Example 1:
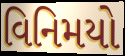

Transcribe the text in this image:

વિનિમયો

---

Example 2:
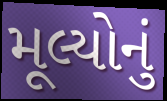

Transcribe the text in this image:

મૂલ્યોનું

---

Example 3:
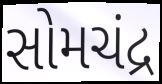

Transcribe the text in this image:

સોમચંદ્ર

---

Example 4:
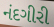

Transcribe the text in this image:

નંદગીરી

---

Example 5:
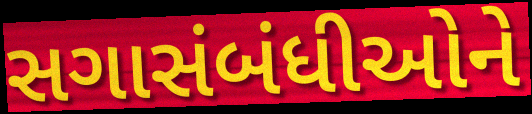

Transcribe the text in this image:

સગાસંબંધીઓને